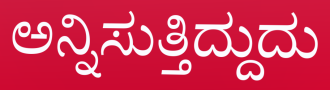
ಅನ್ನಿಸುತ್ತಿದ್ದುದು